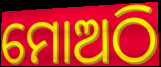
ମୋଅଠି